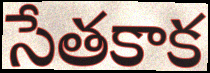
సేతకాక